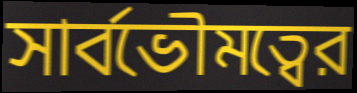
সার্বভৌমত্বের